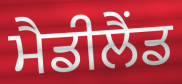
ਮੈਡੀਲੈਂਡ